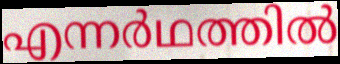
എന്നർഥത്തിൽ